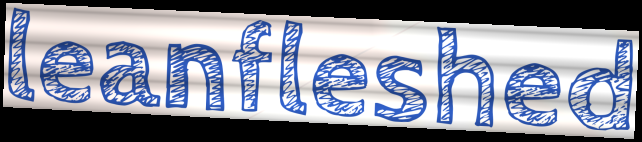
leanfleshed